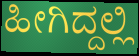
ಹೀಗಿದ್ದಲ್ಲಿ